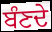
ਬੰਣਦੇ